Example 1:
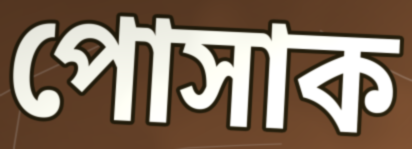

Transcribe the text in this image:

পোসাক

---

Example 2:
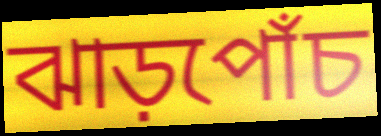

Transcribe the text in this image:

ঝাড়পোঁচ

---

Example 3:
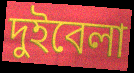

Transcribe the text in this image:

দুইবেলা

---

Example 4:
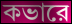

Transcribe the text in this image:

কভারে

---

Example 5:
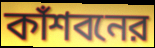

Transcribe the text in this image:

কাঁশবনের